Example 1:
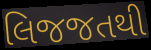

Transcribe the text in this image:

લિજજતથી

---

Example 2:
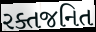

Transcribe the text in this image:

રક્તજનિત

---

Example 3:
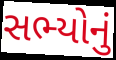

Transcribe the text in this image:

સભ્યોનું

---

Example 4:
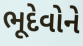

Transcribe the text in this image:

ભૂદેવોને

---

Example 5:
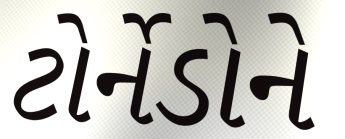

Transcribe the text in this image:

ટોર્નેડોને